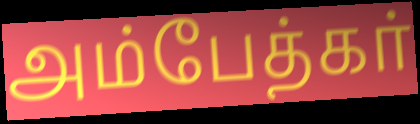
அம்பேத்கர்